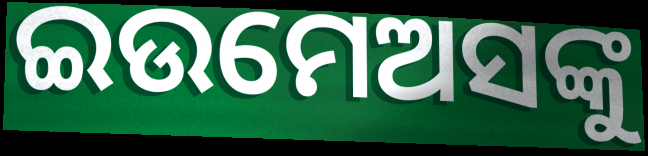
ଇଉମେଅସଙ୍କୁ